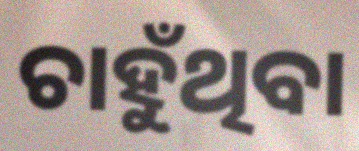
ଚାହୁଁଥିବା